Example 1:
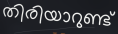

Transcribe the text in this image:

തിരിയാറുണ്ട്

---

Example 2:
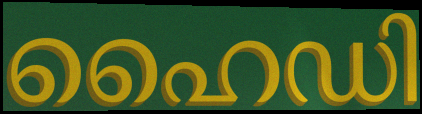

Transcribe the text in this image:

ഹൈഡി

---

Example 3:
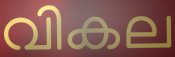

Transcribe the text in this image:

വികല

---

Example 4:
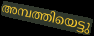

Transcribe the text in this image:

അമ്പത്തിയെട്ടു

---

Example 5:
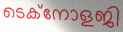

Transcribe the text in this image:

ടെക്നോളജി